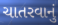
ચાતરવાનું